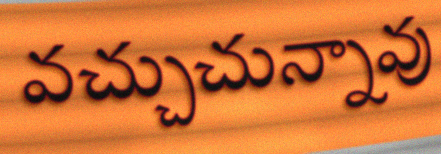
వచ్చుచున్నావు